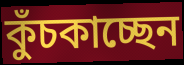
কুঁচকাচ্ছেন